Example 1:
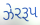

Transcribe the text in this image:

ઝેરરૂપ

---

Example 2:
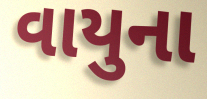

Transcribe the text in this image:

વાયુના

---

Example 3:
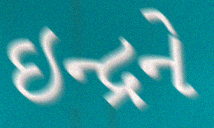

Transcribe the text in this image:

ઇન્દ્રને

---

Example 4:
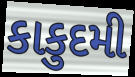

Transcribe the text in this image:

કાકુદમી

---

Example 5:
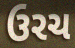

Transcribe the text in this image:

ઉરચ